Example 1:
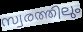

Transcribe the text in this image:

സ്വരത്തിലും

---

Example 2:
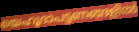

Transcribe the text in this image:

യെഹൂദാപട്ടണങ്ങളിൽ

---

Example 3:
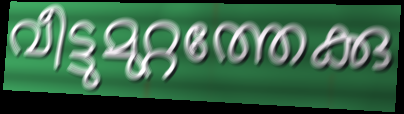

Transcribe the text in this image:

വീട്ടുമുറ്റത്തേക്കു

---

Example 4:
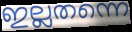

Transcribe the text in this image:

ഇല്ലതന്നെ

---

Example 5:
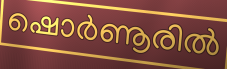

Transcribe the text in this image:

ഷൊർണൂരിൽ